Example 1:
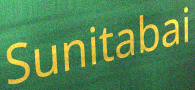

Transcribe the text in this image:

Sunitabai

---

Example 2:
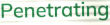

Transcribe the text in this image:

Penetrating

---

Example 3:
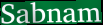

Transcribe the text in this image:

Sabnam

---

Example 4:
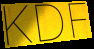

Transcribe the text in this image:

KDF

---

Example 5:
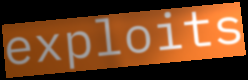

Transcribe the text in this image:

exploits